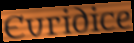
Euridice